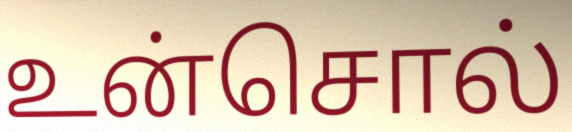
உன்சொல்